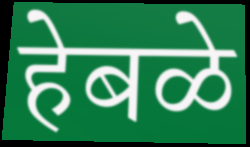
हेबळे